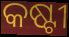
କଷ୍ଟୀ